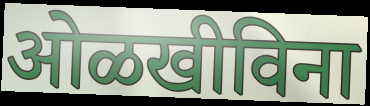
ओळखीविना